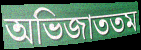
অভিজাততম